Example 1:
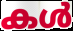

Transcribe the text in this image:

കൾ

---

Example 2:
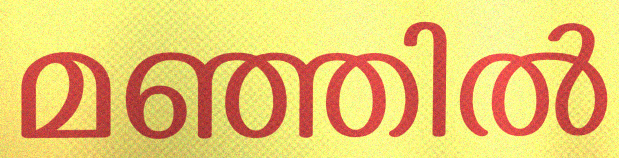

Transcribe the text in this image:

മഞ്ഞിൽ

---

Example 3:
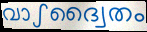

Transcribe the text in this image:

വാഽദ്വൈതം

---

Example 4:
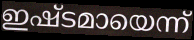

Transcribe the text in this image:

ഇഷ്ടമായെന്ന്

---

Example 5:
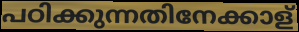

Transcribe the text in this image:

പഠിക്കുന്നതിനേക്കാള്